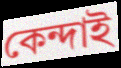
কেন্দাই